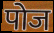
पोज